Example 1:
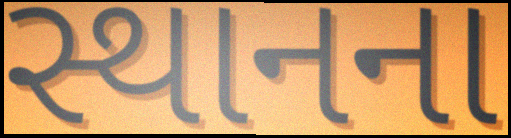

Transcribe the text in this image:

સ્થાનના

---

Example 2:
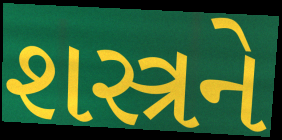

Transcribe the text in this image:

શસ્ત્રને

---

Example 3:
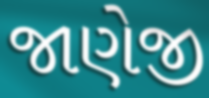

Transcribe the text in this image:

જાણેજી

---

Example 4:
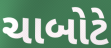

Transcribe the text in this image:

ચાબોટે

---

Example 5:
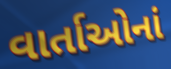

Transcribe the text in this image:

વાર્તાઓનાં